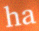
ha